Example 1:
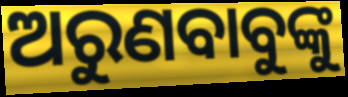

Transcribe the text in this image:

ଅରୁଣବାବୁଙ୍କୁ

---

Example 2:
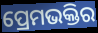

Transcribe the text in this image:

ପ୍ରେମଭକ୍ତିର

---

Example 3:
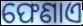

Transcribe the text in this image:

ଫେଣାଏ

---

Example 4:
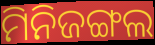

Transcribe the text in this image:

ମିନିଜଙ୍ଗଲ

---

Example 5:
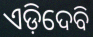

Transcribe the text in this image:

ଏଡ଼ିଦେବି